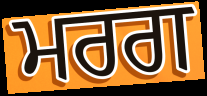
ਮਰਗ